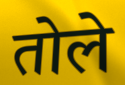
तोले